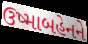
ઉષ્માબહેનને